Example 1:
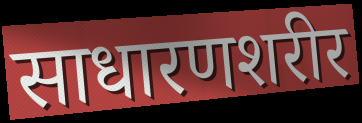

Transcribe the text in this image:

साधारणशरीर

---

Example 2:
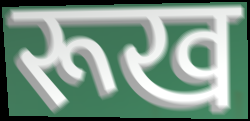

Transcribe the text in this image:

रूख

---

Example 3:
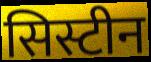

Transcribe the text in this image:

सिस्टीन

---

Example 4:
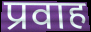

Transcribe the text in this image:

प्रवाह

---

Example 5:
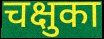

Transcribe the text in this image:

चक्षुका